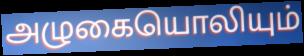
அழுகையொலியும்